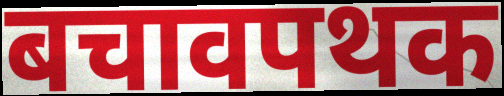
बचावपथक